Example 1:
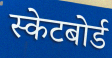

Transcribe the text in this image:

स्केटबोर्ड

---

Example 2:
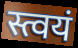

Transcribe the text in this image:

स्त्वयं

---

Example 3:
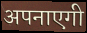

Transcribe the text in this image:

अपनाएगी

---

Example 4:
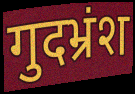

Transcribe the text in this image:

गुदभ्रंश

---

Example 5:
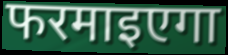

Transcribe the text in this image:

फरमाइएगा